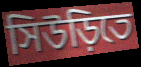
সিউড়িতে